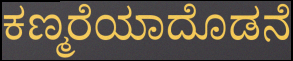
ಕಣ್ಮರೆಯಾದೊಡನೆ